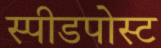
स्पीडपोस्ट